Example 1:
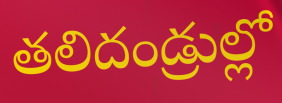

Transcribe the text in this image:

తలిదండ్రుల్లో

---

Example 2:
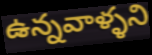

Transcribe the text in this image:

ఉన్నవాళ్ళని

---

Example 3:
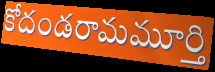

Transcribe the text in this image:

కోదండరామమూర్తి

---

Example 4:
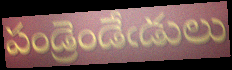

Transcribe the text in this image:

పండ్రెండేఁడులు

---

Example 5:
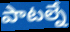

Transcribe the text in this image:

పాటల్నే